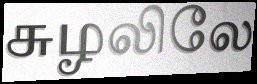
சுழலிலே